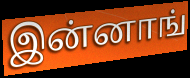
இன்னாங்